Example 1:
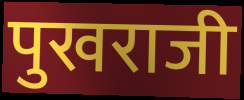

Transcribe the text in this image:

पुखराजी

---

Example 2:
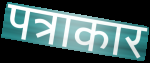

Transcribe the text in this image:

पत्राकार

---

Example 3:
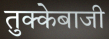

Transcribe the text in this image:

तुक्केबाजी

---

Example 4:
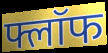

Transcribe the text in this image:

फ्लॉफ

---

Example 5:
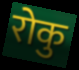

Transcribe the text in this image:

रोकु